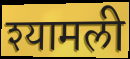
श्यामली